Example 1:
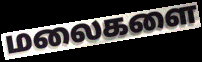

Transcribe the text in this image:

மலைகளை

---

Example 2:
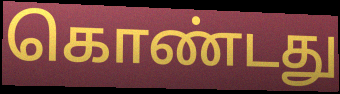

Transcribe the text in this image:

கொண்டது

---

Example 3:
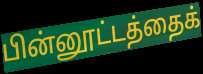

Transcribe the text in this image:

பின்னூட்டத்தைக்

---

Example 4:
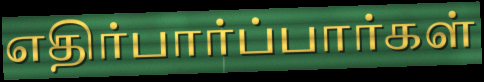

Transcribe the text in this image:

எதிர்பார்ப்பார்கள்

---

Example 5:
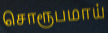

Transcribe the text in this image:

சொரூபமாய்